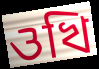
ওখি